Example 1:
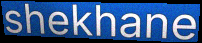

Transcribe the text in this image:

shekhane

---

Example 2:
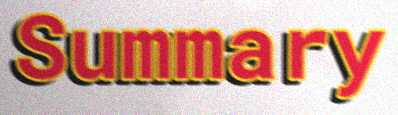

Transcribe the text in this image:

Summary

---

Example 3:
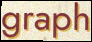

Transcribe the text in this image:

graph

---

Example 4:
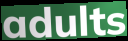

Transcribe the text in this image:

adults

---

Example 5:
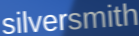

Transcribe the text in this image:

silversmith